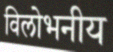
विलोभनीय